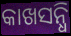
କାଖସନ୍ଧି